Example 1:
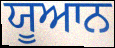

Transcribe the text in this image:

ਯੂਆਨ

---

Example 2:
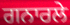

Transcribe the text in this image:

ਗਨਾਰਲੇ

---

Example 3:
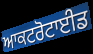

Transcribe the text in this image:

ਆਕਟਰੋਟਾਈਡ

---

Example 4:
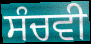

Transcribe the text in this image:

ਸੰਚਵੀ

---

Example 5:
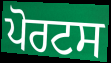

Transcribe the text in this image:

ਪੋਰਟਸ